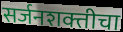
सर्जनशक्तीचा